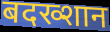
बदख्शान